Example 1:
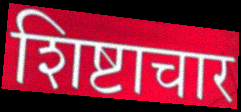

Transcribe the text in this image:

शिष्टाचार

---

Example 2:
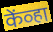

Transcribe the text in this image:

केंव्हा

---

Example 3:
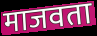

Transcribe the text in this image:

माजवता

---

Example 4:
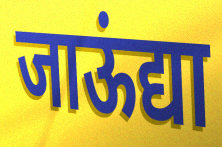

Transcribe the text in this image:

जाऊंद्या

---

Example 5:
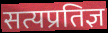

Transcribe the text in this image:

सत्यप्रतिज्ञ